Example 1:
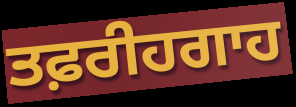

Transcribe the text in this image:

ਤਫ਼ਰੀਹਗਾਹ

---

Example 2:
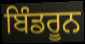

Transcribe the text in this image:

ਬਿੰਡਰੂਨ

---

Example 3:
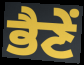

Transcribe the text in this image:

ਭੈਣੇਂ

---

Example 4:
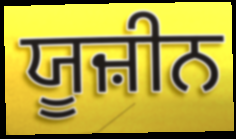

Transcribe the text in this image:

ਯੂਜ਼ੀਨ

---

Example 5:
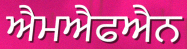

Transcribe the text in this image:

ਐਮਐਫਐਨ